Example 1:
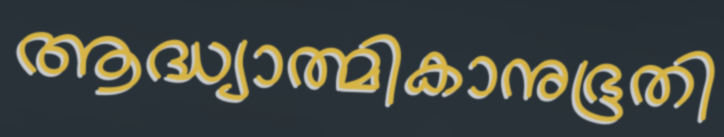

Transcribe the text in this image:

ആദ്ധ്യാത്മികാനുഭൂതി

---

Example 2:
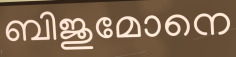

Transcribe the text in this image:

ബിജുമോനെ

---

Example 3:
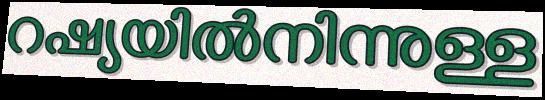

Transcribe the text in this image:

റഷ്യയിൽനിന്നുള്ള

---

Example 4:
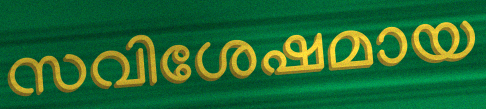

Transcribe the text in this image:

സവിശേഷമായ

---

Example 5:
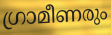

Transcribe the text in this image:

ഗ്രാമീണരും